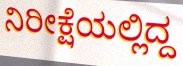
ನಿರೀಕ್ಷೆಯಲ್ಲಿದ್ದ